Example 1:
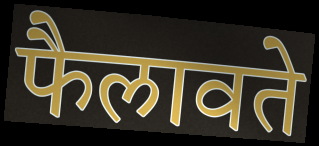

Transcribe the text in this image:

फैलावते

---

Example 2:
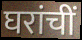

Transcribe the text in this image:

घरांचीं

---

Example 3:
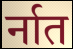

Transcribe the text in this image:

र्नात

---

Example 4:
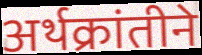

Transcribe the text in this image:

अर्थक्रांतीने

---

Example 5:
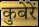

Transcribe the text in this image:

कुबेरें